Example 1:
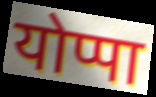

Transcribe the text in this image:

योप्पा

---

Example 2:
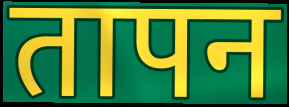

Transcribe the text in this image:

तापन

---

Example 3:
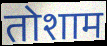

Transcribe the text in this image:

तोशाम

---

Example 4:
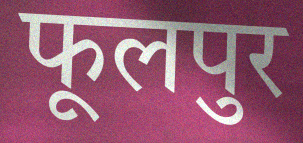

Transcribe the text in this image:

फूलपुर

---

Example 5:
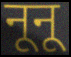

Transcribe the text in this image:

नूनू